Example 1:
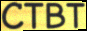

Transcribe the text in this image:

CTBT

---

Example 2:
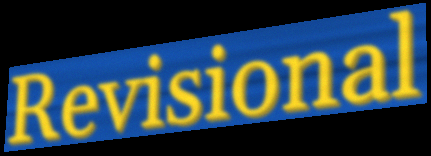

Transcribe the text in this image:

Revisional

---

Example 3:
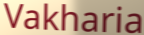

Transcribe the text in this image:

Vakharia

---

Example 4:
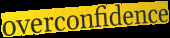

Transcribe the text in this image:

overconfidence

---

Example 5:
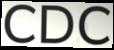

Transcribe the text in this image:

CDC